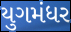
યુગમંધર